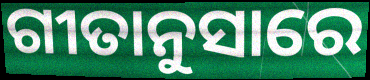
ଗୀତାନୁସାରେ